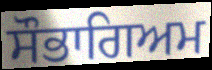
ਸੌਭਾਗਿਅਮ